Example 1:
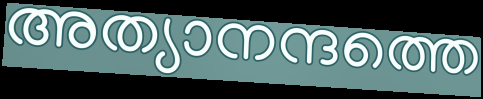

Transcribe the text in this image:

അത്യാനന്ദത്തെ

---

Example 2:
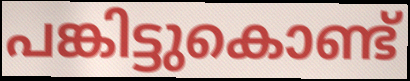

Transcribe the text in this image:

പങ്കിട്ടുകൊണ്ട്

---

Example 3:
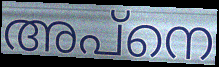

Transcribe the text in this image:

അപ്നെ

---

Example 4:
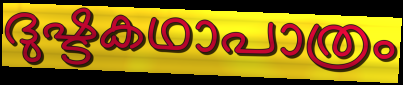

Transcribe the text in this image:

ദുഷ്ടകഥാപാത്രം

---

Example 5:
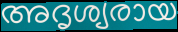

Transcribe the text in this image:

അദൃശ്യരായ